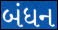
બંધન